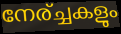
നേര്ച്ചകളും